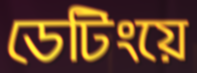
ডেটিংয়ে